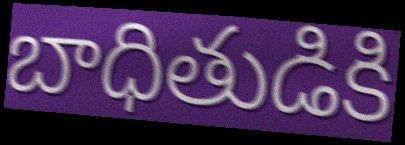
బాధితుడికి